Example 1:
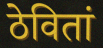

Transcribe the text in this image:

ठेवितां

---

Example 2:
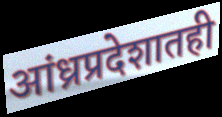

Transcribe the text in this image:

आंध्रप्रदेशातही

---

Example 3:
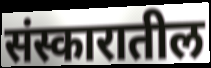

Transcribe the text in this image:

संस्कारातील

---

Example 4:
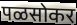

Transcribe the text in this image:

पळसोकर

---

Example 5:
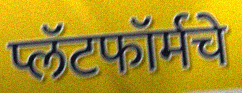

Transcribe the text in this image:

प्लॅटफॉर्मचे